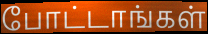
போட்டாங்கள்